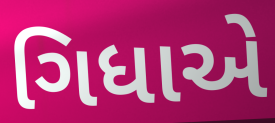
ગિધાએ